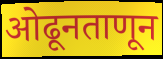
ओढूनताणून